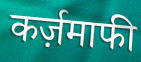
कर्ज़माफी